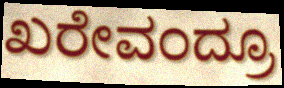
ಖರೇವಂದ್ರೂ